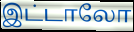
இட்டாலோ